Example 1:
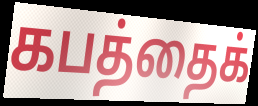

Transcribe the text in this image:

கபத்தைக்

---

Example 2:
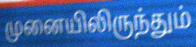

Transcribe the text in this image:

முனையிலிருந்தும்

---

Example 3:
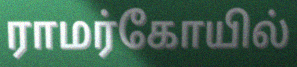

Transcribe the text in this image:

ராமர்கோயில்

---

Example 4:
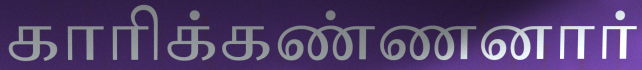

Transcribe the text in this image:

காரிக்கண்ணனார்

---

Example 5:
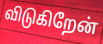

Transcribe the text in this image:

விடுகிறேன்